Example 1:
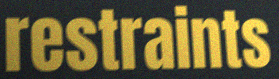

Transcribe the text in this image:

restraints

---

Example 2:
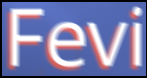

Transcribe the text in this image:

Fevi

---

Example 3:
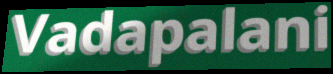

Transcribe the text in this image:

Vadapalani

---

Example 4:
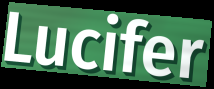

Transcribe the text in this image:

Lucifer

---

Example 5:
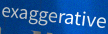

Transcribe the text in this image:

exaggerative